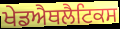
ਖੇਡਐਥਲੈਟਿਕਸ